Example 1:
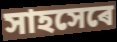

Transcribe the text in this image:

সাহসেৰে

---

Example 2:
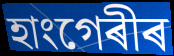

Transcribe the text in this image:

হাংগেৰীৰ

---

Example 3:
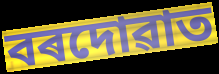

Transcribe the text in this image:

বৰদোৱাত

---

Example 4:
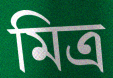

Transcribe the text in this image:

মিত্ৰ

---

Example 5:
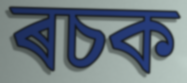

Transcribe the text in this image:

ৰচক